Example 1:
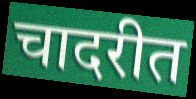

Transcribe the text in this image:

चादरीत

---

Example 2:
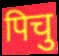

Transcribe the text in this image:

पिचु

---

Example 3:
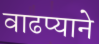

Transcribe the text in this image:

वाढप्याने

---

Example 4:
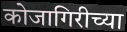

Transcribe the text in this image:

कोजागिरीच्या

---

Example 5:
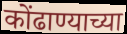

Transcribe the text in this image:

कोंढाण्याच्या